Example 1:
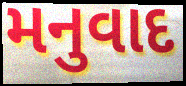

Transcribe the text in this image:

મનુવાદ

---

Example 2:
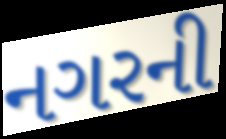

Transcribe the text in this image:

નગરની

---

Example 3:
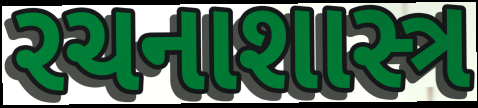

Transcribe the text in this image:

રચનાશાસ્ત્ર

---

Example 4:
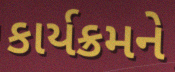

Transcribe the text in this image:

કાર્યક્રમને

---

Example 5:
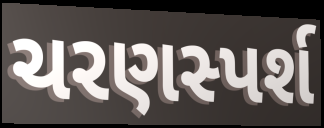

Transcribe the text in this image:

ચરણસ્પર્શ